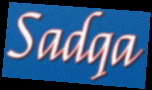
Sadqa